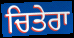
ਚਿਤੇਰਾ